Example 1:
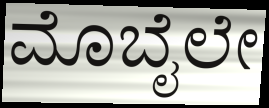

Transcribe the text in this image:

ಮೊಬೈಲೇ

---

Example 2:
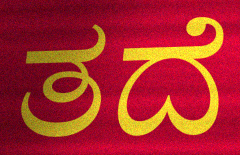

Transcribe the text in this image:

ತದೆ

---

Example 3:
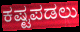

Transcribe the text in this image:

ಕಷ್ಟಪಡಲು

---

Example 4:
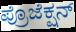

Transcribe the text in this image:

ಪ್ರೊಜೆಕ್ಷನ್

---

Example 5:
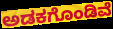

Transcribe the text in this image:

ಅಡಕಗೊಂಡಿವೆ